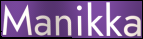
Manikka